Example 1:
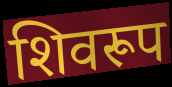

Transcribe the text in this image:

शिवरूप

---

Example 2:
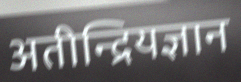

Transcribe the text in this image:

अतीन्द्रियज्ञान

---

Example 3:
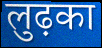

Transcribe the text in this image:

लुढ़का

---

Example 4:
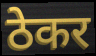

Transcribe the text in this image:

ठेकर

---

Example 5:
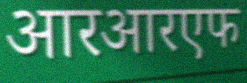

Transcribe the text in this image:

आरआरएफ